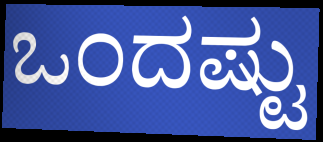
ಒಂದಷ್ಟು